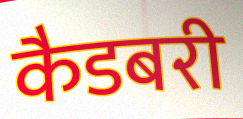
कैडबरी